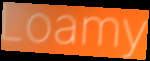
Loamy